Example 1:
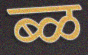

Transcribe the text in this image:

ब्ळ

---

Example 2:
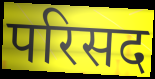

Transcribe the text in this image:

परिसद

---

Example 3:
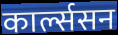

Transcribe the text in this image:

कार्ल्ससन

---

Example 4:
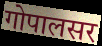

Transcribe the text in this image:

गोपालसर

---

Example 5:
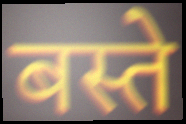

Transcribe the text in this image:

बस्ते